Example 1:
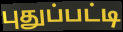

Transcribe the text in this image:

புதுப்பட்டி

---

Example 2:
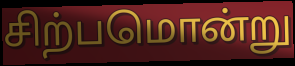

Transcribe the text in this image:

சிற்பமொன்று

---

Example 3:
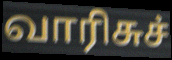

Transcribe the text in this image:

வாரிசுச்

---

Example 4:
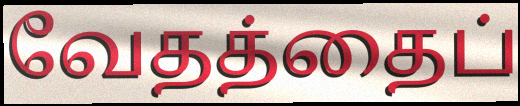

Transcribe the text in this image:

வேதத்தைப்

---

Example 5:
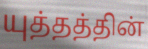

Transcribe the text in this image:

யுத்தத்தின்